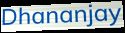
Dhananjay